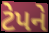
ટેપને